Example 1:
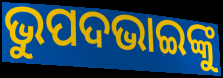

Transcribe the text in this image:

ଭୁପଦଭାଇଙ୍କୁ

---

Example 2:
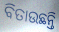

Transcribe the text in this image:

ବିତାଉଛନ୍ତି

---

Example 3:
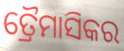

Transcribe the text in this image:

ତ୍ରୈମାସିକର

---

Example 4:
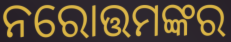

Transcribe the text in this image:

ନରୋତ୍ତମଙ୍କର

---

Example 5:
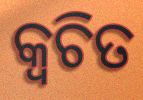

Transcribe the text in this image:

କ୍ୱଚିତ